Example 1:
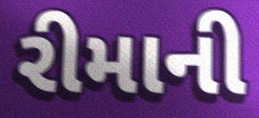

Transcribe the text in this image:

રીમાની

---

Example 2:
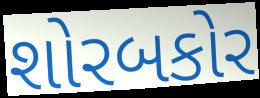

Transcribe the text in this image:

શોરબકોર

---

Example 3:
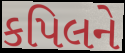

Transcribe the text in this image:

કપિલને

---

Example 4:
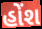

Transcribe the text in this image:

હોંશ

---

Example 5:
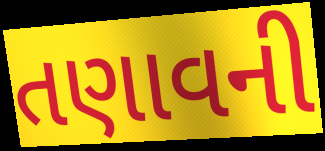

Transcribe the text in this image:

તણાવની